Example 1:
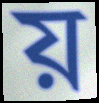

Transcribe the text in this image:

য়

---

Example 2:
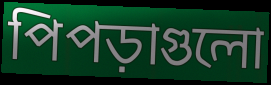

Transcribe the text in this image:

পিপড়াগুলো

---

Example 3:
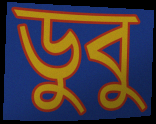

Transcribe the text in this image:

ডুবু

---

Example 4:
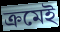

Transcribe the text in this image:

ক্রমেই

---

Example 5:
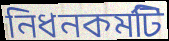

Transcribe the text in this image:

নিধনকর্মটি